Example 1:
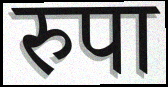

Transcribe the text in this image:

रुपा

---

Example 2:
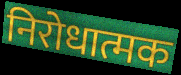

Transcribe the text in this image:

निरोधात्मक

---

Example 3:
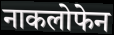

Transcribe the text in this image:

नाकलोफेन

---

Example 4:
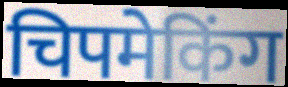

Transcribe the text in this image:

चिपमेकिंग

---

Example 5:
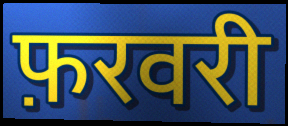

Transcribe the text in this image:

फ़रवरी